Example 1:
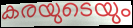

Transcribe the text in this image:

കരയുടെയും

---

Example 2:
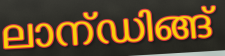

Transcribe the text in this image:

ലാന്ഡിങ്ങ്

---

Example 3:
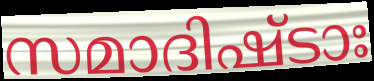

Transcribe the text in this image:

സമാദിഷ്ടാഃ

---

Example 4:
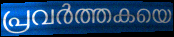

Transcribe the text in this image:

പ്രവർത്തകയെ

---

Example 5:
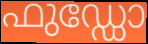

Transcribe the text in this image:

ഫുഡ്ഡോ